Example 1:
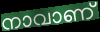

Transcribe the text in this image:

നാവാണ്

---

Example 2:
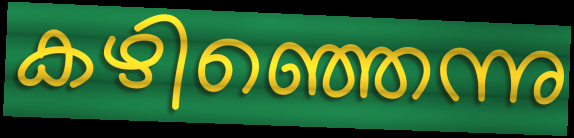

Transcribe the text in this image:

കഴിഞ്ഞെന്നു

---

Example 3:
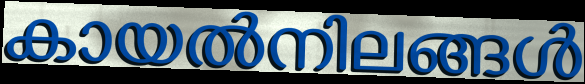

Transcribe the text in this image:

കായൽനിലങ്ങൾ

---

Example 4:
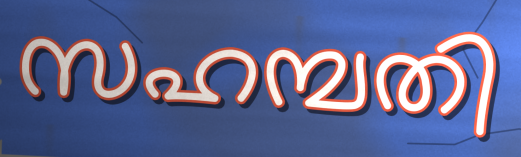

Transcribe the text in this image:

സഹമ്പതി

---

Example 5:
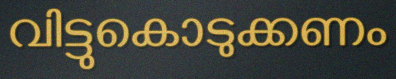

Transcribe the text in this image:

വിട്ടുകൊടുക്കണം